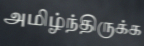
அமிழ்ந்திருக்க